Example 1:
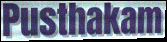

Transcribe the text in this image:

Pusthakam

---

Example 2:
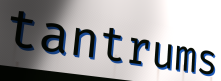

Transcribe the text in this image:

tantrums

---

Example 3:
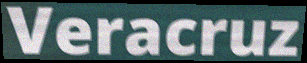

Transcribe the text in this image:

Veracruz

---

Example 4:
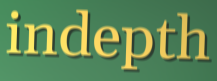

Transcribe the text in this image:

indepth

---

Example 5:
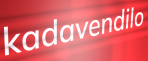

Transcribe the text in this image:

kadavendilo